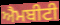
ਐਮਬੀਟੀ